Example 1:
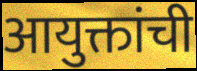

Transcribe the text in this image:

आयुक्तांची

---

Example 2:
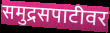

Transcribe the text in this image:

समुद्रसपाटीवर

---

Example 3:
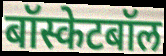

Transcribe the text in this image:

बॉस्केटबॉल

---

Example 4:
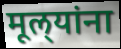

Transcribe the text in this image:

मूल्यांना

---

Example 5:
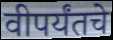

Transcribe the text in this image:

वीपर्यंतचे